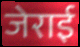
जेराई